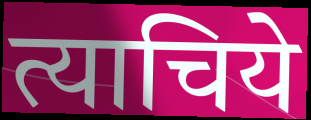
त्याचिये